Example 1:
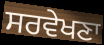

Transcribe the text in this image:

ਸਰਵੇਖਣਾ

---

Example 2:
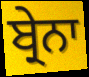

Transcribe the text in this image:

ਬ੍ਰੇਨਾ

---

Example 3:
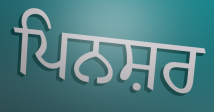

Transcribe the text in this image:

ਪਿਨਸ਼ਰ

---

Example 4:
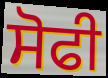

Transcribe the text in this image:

ਸੋਫੀ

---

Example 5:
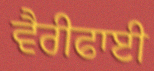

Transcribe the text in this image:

ਵੈਰੀਫਾਈ